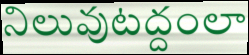
నిలువుటద్దంలా